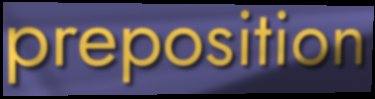
preposition